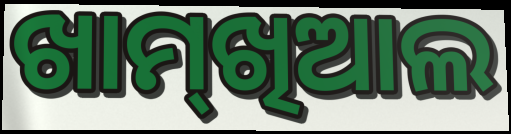
ଖାମ୍‌ଖିଆଲ